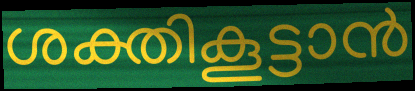
ശക്തികൂട്ടാൻ